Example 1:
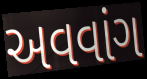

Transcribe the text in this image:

અવવાંગ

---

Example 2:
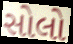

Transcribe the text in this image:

સોલો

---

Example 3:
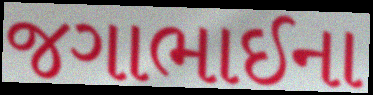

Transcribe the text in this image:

જગાભાઈના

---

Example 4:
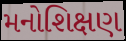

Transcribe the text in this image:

મનોશિક્ષણ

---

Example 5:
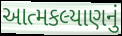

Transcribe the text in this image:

આત્મકલ્યાણનું